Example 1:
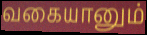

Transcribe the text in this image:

வகையானும்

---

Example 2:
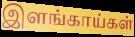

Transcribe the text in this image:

இளங்காய்கள்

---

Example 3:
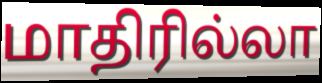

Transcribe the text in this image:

மாதிரில்லா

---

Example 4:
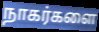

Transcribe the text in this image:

நாகர்களை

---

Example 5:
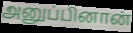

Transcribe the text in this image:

அனுப்பினான்